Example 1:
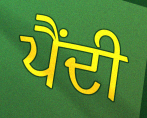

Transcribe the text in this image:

ਪੈਂਦੀ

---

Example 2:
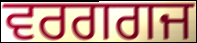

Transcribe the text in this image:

ਵਰਗਗਜ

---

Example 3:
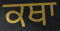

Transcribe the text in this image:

ਕਥਾ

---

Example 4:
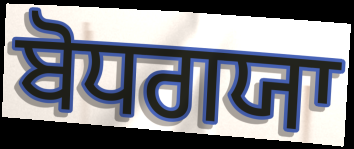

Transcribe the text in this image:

ਬੋਧਗਯਾ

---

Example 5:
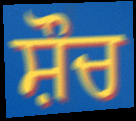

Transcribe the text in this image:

ਸ਼ੌਚ